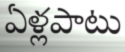
ఏళ్లపాటు